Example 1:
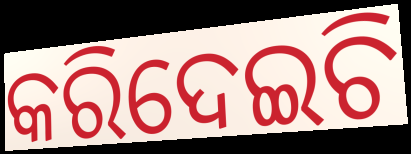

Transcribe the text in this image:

କରିଦେଇଚି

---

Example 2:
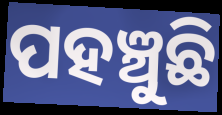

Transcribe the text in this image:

ପହଞ୍ଚୁଛି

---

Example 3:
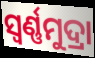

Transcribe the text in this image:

ସ୍ୱର୍ଣ୍ଣମୁଦ୍ରା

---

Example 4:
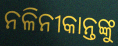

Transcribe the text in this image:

ନଳିନୀକାନ୍ତଙ୍କୁ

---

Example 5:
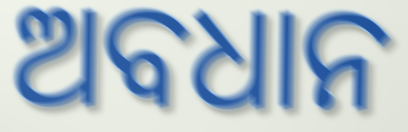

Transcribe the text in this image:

ଅବଧାନ